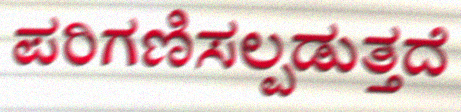
ಪರಿಗಣಿಸಲ್ಪಡುತ್ತದೆ